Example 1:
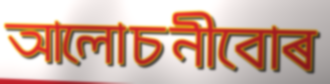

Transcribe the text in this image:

আলোচনীবোৰ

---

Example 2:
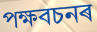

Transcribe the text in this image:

পক্ষবচনৰ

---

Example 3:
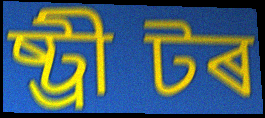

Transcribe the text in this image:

ষ্ট্ৰীটৰ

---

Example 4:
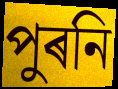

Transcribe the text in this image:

পুৰনি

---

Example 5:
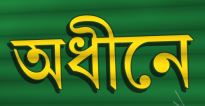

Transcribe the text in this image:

অধীনে